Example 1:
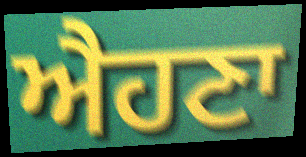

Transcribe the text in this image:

ਐਹਣਾ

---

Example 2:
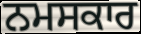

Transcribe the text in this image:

ਨਮਸਕਾਰ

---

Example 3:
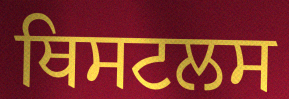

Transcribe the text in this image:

ਥਿਸਟਲਸ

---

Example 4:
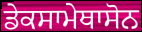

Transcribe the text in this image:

ਡੇਕਸਾਮੇਥਾਸੋਨ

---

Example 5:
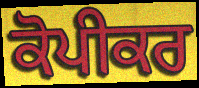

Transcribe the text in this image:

ਕੋਪੀਕਰ